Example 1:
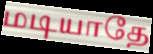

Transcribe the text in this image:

மடியாதே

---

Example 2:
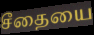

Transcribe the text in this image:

சீதையை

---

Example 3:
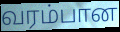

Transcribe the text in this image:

வரம்பான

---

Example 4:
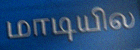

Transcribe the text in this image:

மாடியில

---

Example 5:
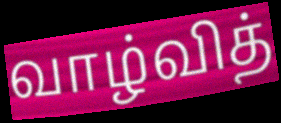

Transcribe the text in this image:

வாழ்வித்